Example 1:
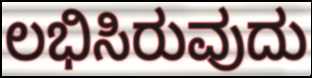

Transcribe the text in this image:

ಲಭಿಸಿರುವುದು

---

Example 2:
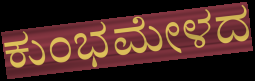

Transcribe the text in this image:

ಕುಂಭಮೇಳದ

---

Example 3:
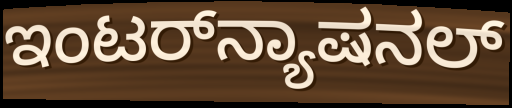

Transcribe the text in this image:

ಇಂಟರ್‌ನ್ಯಾಷನಲ್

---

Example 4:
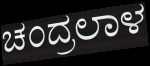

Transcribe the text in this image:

ಚಂದ್ರಲಾಳ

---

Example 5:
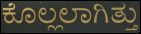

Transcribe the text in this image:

ಕೊಲ್ಲಲಾಗಿತ್ತು